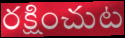
రక్షించుట